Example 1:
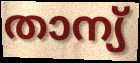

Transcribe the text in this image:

താന്യ്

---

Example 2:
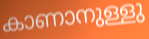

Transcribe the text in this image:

കാണാനുള്ളു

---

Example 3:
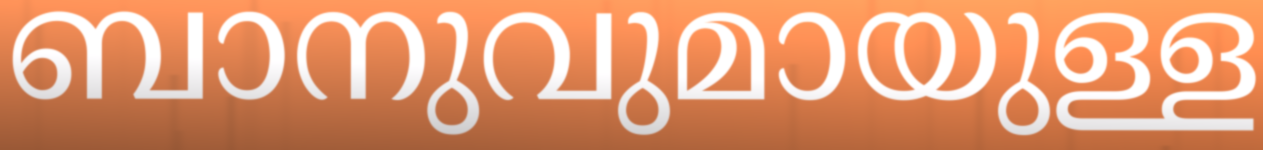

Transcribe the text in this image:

ബാനുവുമായുള്ള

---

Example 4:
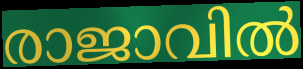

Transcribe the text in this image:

രാജാവിൽ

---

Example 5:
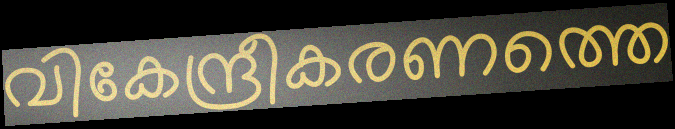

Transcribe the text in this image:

വികേന്ദ്രീകരണത്തെ